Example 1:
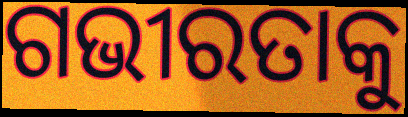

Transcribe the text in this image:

ଗଭୀରତାକୁ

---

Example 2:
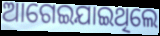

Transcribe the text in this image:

ଆଗେଇଯାଇଥିଲେ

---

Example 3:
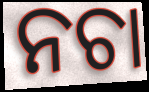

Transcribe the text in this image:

ନଚା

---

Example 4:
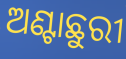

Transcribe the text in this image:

ଅଣ୍ଟାଛୁରୀ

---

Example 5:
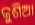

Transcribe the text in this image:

କୁଶିଆ